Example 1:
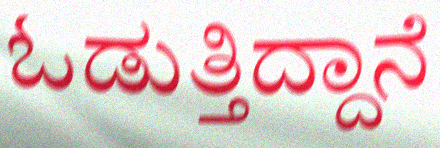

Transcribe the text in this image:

ಓಡುತ್ತಿದ್ದಾನೆ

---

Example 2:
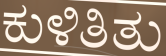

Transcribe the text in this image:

ಕುಳಿತಿತು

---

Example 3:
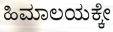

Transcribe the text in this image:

ಹಿಮಾಲಯಕ್ಕೇ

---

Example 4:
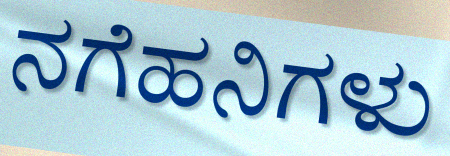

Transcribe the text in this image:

ನಗೆಹನಿಗಳು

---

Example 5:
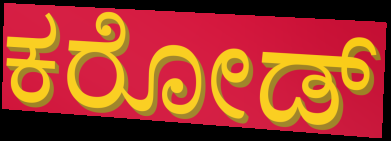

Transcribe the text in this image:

ಕರೋಡ್